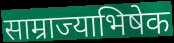
साम्राज्याभिषेक